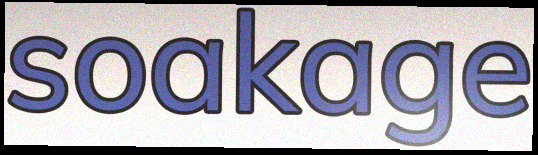
soakage